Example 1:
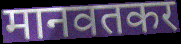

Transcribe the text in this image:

मानवतकर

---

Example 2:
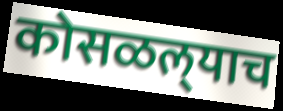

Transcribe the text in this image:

कोसळल्याच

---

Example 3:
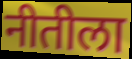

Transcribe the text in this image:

नीतीला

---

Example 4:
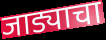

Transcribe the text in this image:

जाड्याचा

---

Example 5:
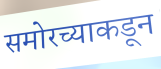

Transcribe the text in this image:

समोरच्याकडून